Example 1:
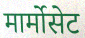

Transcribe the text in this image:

मार्मोसेट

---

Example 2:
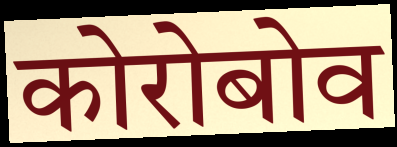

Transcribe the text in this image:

कोरोबोव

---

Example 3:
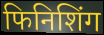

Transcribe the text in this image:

फिनिशिंग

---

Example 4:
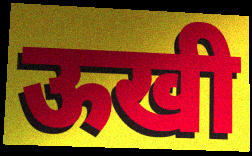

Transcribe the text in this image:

ऊखी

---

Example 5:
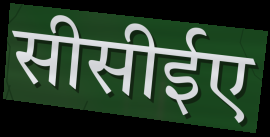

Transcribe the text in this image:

सीसीईए